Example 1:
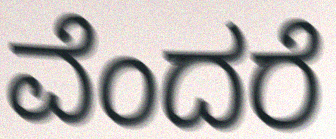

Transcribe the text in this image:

ವೆಂದರೆ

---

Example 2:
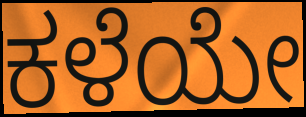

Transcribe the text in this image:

ಕಳೆಯೇ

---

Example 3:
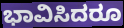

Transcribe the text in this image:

ಭಾವಿಸಿದರೂ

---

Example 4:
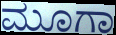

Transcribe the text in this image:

ಮೂಗಾ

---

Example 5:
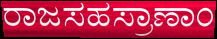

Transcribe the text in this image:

ರಾಜಸಹಸ್ರಾಣಾಂ